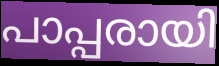
പാപ്പരായി